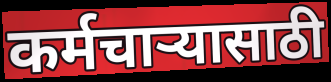
कर्मचाऱ्यासाठी